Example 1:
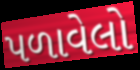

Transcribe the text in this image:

પળાવેલો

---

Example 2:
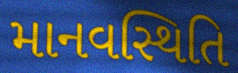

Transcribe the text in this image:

માનવસ્થિતિ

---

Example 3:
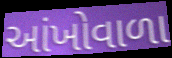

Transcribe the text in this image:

આંખોવાળા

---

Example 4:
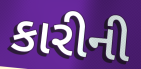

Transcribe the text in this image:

કારીની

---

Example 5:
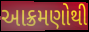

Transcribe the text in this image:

આક્રમણોથી